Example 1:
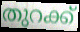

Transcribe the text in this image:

തുറക്ക്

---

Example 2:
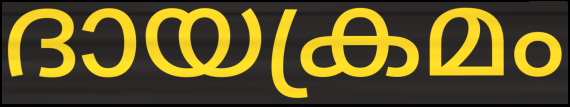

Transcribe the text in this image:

ദായക്രമം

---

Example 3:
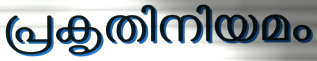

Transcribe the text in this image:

പ്രകൃതിനിയമം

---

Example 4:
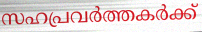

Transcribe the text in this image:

സഹപ്രവർത്തകർക്ക്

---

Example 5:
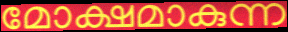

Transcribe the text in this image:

മോക്ഷമാകുന്ന